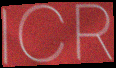
ICR